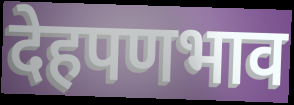
देहपणभाव